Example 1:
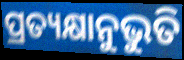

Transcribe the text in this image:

ପ୍ରତ୍ୟକ୍ଷାନୁଭୁତି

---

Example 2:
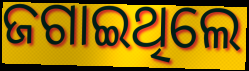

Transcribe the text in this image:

ଜଗାଇଥିଲେ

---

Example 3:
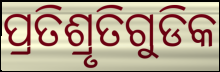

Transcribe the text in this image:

ପ୍ରତିଶ୍ରୃତିଗୁଡିକ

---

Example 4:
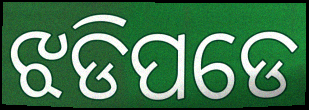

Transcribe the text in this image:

ଝଡିପଡେ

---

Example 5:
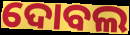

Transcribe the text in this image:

ଦୋବଲ